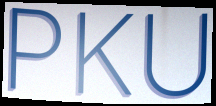
PKU